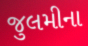
જુલમીના